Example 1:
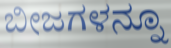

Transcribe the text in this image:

ಬೀಜಗಳನ್ನೂ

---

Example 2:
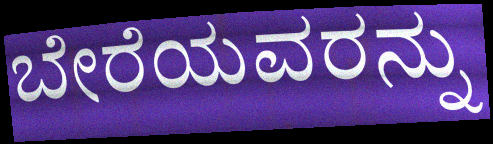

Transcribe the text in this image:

ಬೇರೆಯವರನ್ನು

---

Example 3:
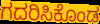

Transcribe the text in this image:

ಗದರಿಸಿಕೊಂಡ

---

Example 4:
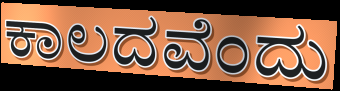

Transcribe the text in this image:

ಕಾಲದವೆಂದು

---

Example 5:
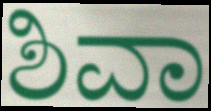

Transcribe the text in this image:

ಶಿವಾ